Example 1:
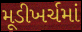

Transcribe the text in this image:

મૂડીખર્ચમાં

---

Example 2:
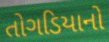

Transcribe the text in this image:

તોગડિયાનો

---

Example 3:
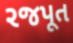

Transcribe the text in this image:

રજપૂત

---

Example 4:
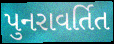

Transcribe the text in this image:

પુનરાવર્તિત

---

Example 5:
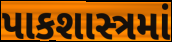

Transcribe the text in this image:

પાકશાસ્ત્રમાં